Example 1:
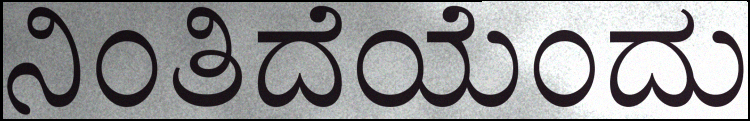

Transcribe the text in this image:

ನಿಂತಿದೆಯೆಂದು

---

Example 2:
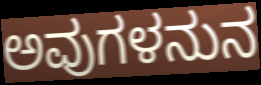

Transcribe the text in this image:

ಅವುಗಳನುನ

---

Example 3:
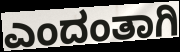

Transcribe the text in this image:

ಎಂದಂತಾಗಿ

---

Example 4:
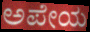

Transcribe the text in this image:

ಅಪೇಯ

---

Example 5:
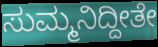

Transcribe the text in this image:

ಸುಮ್ಮನಿದ್ದೀತೇ